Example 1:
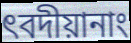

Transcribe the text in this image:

ৎবদীয়ানাং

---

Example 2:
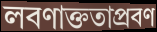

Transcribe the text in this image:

লবণাক্ততাপ্রবণ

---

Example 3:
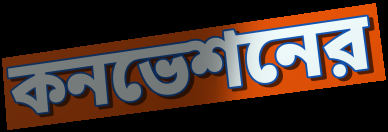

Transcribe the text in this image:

কনভেশনের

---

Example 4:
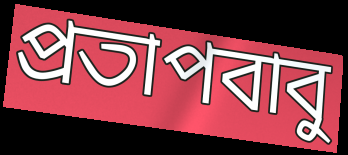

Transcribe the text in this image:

প্রতাপবাবু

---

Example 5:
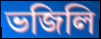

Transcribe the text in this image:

ভজিলি